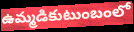
ఉమ్మడికుటుంబంలో